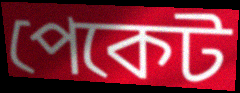
পেকেট